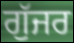
ਗੁੱਜਰ